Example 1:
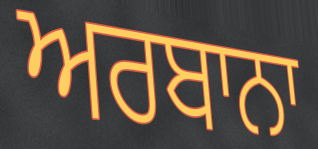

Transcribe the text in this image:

ਅਰਬਾਨਾ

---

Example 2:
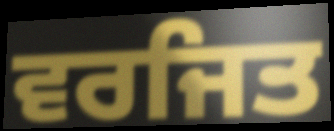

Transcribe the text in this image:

ਵਰਜਿਤ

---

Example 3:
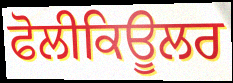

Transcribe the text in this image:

ਫੋਲੀਕਿਊਲਰ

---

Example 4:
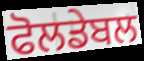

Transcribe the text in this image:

ਫੋਲਡੇਬਲ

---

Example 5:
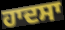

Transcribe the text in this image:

ਹਾਦਸਾ